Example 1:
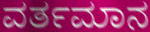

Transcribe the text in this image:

ವರ್ತಮಾನ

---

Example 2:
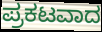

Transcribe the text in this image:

ಪ್ರಕಟವಾದ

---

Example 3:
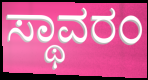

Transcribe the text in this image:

ಸ್ಥಾವರಂ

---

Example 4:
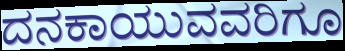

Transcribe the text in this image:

ದನಕಾಯುವವರಿಗೂ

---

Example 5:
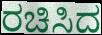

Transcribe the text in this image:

ರಚಿಸಿದ